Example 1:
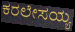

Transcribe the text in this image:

ಕರಲೇಸಯ್ಯ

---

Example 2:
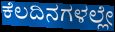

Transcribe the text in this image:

ಕೆಲದಿನಗಳಲ್ಲೇ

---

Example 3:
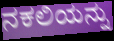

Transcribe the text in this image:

ನಕಲಿಯನ್ನು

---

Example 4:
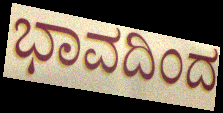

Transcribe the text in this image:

ಭಾವದಿಂದ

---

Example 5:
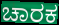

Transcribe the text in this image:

ಚಾರಕ